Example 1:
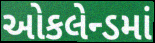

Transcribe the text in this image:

ઓકલેન્ડમાં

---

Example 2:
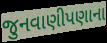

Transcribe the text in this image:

જુનવાણીપણાના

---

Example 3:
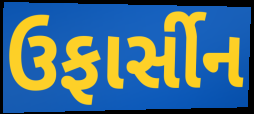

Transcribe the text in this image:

ઉફાર્સીન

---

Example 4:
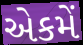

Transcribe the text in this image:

એકમેં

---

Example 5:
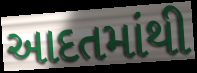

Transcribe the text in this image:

આદતમાંથી